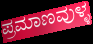
ಪ್ರಮಾಣವುಳ್ಳ